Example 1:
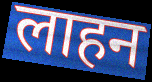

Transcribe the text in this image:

लाहन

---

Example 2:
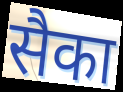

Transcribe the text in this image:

सैका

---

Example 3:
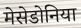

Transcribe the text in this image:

मेसेडोनिया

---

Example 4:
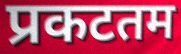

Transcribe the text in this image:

प्रकटतम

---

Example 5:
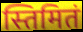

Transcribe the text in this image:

स्तिमितं